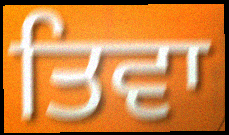
ਤਿਵਾ